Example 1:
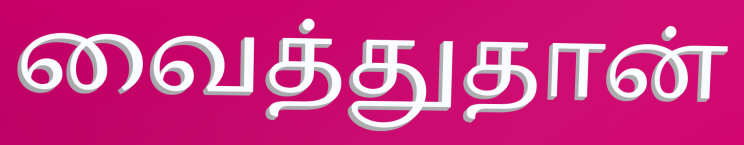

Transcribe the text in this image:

வைத்துதான்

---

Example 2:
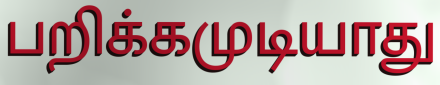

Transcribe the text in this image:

பறிக்கமுடியாது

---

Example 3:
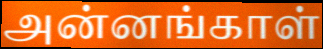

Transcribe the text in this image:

அன்னங்காள்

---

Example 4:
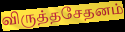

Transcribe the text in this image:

விருத்தசேதனம்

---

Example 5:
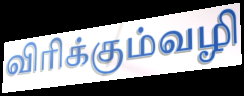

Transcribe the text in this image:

விரிக்கும்வழி